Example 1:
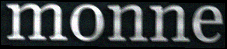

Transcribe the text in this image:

monne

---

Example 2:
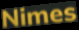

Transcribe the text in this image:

Nimes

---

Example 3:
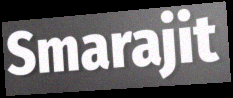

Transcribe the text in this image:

Smarajit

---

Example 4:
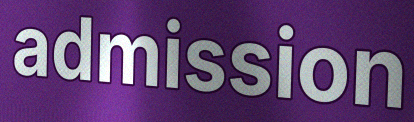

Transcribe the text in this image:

admission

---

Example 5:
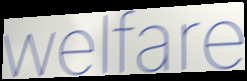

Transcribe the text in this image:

welfare